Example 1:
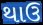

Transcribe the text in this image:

થાઉ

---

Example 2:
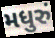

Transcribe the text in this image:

મધુરું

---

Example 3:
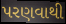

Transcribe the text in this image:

પરણવાથી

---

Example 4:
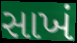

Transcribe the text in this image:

સાખં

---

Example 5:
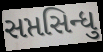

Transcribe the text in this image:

સપ્તસિન્ધુ